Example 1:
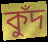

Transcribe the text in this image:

কুঁদ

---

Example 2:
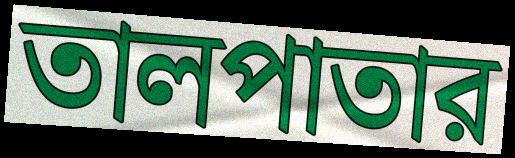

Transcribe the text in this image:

তালপাতার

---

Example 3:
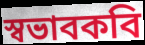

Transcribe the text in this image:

স্বভাবকবি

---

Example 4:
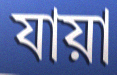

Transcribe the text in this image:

যায়া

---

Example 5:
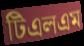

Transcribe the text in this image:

টিএলএম